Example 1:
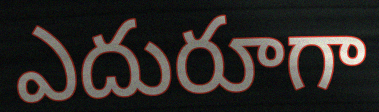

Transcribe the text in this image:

ఎదురూగా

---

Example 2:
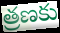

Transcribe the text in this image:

త్రణకు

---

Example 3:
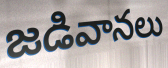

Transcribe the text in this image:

జడివానలు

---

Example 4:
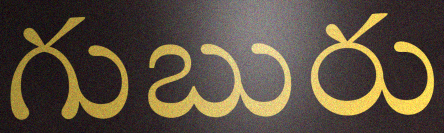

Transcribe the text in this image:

గుబురు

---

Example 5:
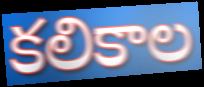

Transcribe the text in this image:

కలికాల